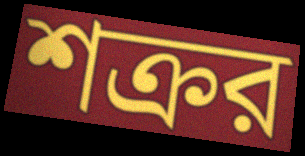
শক্রর